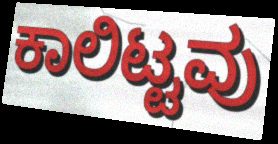
ಕಾಲಿಟ್ಟವು